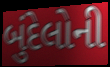
બુંદેલોની